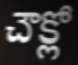
చౌక్లో